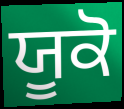
ਯੂਕੋ